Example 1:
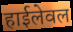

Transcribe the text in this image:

हाईलेवल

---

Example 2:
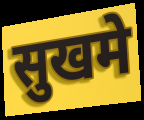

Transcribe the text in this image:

सुखमे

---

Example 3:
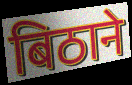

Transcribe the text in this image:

बिठाने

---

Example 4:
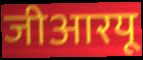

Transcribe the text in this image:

जीआरयू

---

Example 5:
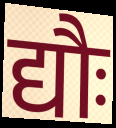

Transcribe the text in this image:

द्यौः